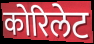
कोरिलेट